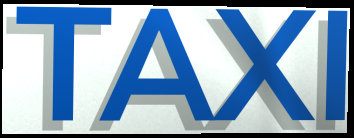
TAXI